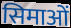
सिमाओं